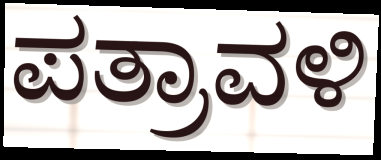
ಪತ್ರಾವಳಿ